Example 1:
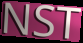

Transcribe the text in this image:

NST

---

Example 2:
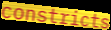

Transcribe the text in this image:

constricts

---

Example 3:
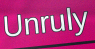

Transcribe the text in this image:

Unruly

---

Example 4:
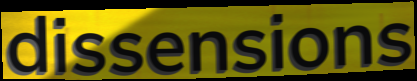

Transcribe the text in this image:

dissensions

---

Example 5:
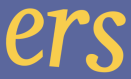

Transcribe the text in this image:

ers